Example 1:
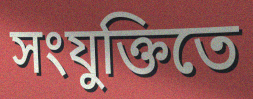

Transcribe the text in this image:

সংযুক্তিতে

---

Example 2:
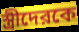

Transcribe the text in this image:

স্ত্রীদেরকে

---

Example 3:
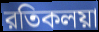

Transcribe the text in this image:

রতিকলয়া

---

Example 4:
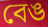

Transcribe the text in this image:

বেঙ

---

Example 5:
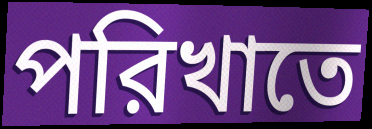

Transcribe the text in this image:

পরিখাতে